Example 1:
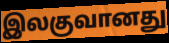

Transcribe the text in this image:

இலகுவானது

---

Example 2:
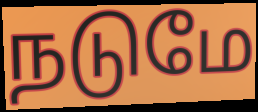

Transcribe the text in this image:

நடுமே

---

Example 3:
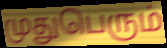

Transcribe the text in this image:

முதுபெரும்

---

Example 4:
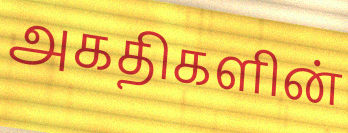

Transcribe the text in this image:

அகதிகளின்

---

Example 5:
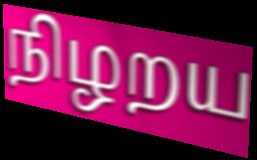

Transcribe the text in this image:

நிழறய